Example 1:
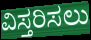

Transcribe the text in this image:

ವಿಸ್ತರಿಸಲು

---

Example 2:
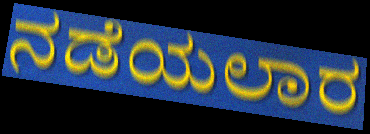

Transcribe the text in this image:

ನಡೆಯಲಾರ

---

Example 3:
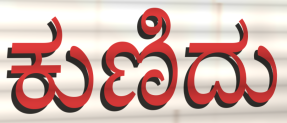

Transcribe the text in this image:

ಕುಣಿದು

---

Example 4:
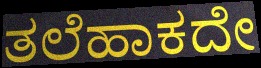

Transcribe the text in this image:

ತಲೆಹಾಕದೇ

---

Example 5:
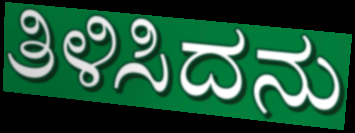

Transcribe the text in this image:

ತಿಳಿಸಿದನು